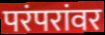
परंपरांवर